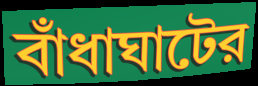
বাঁধাঘাটের